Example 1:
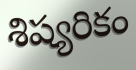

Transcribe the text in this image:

శిష్యరికం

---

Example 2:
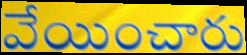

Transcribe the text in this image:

వేయించారు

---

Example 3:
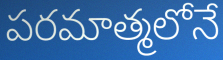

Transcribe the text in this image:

పరమాత్మలోనే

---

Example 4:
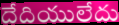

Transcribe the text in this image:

దేదియులేదు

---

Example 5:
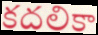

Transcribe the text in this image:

కదలికా